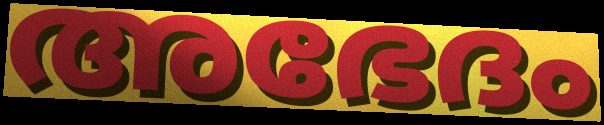
അഭേദം